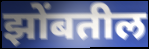
झोंबतील